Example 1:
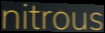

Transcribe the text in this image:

nitrous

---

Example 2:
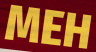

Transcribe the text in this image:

MEH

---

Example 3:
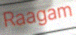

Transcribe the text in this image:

Raagam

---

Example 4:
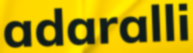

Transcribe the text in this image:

adaralli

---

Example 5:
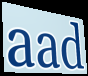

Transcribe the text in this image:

aad